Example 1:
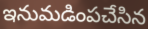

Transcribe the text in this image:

ఇనుమడింపచేసిన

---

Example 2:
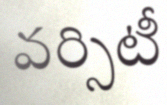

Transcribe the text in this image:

వర్సిటీ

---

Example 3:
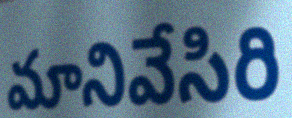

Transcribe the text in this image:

మానివేసిరి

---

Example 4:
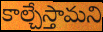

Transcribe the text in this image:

కాల్చేస్తామని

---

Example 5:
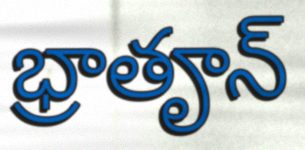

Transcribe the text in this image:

భ్రాతౄన్